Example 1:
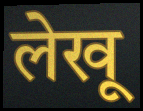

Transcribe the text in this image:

लेखू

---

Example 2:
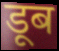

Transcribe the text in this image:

डूब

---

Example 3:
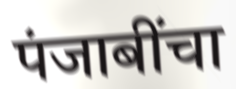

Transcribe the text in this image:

पंजाबींचा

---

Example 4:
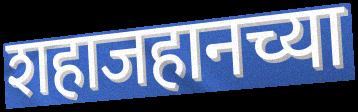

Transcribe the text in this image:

शहाजहानच्या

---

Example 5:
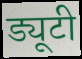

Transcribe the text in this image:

ड्यूटी